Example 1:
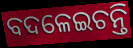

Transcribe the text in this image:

ବଦଳେଇଚନ୍ତି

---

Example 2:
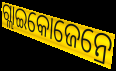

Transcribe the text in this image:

ଗ୍ଲାଇକୋଜେନ୍ରେ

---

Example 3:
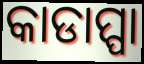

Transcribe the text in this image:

କାଡାପ୍ପା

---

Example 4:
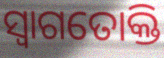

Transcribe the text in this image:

ସ୍ଵାଗତୋକ୍ତି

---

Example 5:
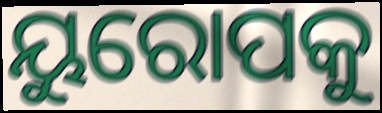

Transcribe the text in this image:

ୟୁରୋପକୁ